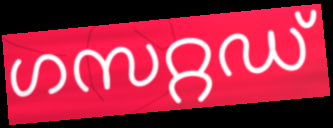
ഗസറ്റഡ്